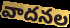
వాదనల